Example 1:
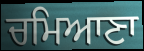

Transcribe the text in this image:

ਚਮਿਆਣਾ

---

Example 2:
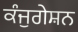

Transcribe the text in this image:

ਕੰਜੁਗੇਸ਼ਨ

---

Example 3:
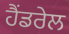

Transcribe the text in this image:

ਹੈਂਡਰੇਲ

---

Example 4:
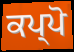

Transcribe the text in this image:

ਕਪ੍ਪੋ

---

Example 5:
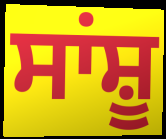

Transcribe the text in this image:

ਸਾਂਸ਼ੂ